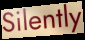
Silently